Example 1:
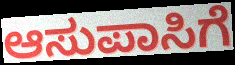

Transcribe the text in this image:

ಆಸುಪಾಸಿಗೆ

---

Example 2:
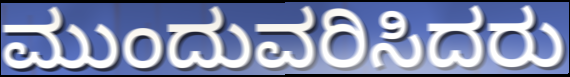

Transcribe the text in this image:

ಮುಂದುವರಿಸಿದರು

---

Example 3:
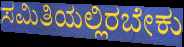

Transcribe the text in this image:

ಸಮಿತಿಯಲ್ಲಿರಬೇಕು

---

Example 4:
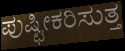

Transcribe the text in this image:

ಪುಷ್ಟೀಕರಿಸುತ್ತ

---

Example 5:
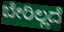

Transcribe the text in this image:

ಬೇರಿಲ್ಲದೆ